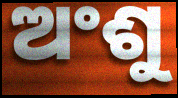
ଅଂଶୁ